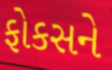
ફોકસને